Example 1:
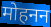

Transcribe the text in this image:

मोहनन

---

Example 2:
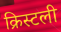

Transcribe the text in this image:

क्रिस्टली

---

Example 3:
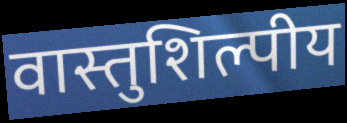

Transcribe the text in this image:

वास्तुशिल्पीय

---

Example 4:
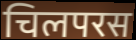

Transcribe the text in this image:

चिलपरस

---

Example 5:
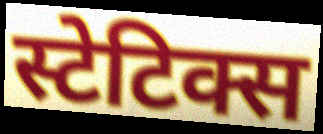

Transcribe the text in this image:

स्टेटिक्स